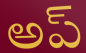
అప్